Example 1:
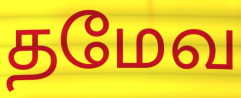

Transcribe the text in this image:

தமேவ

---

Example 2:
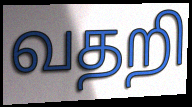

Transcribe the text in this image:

வதறி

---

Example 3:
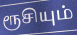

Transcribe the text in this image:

ரூசியும்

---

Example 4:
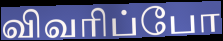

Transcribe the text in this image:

விவரிப்போ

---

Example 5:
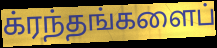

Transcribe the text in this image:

க்ரந்தங்களைப்